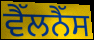
ਵੈੱਲਨੈੱਸ